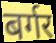
बर्गर